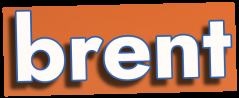
brent